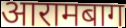
आरामबाग